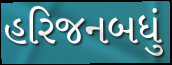
હરિજનબધું